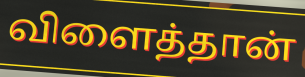
விளைத்தான்